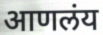
आणलंय